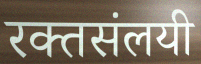
रक्तसंलयी